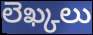
లెఖ్కలు